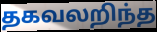
தகவலறிந்த